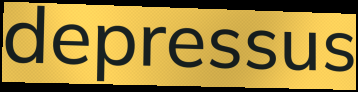
depressus